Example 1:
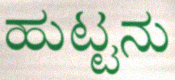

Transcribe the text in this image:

ಹುಟ್ಟನು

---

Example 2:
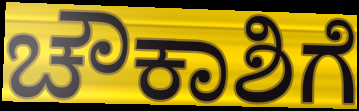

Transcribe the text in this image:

ಚೌಕಾಶಿಗೆ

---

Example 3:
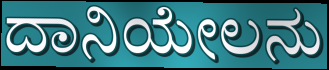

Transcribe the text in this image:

ದಾನಿಯೇಲನು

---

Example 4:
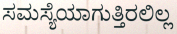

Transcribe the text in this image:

ಸಮಸ್ಯೆಯಾಗುತ್ತಿರಲಿಲ್ಲ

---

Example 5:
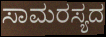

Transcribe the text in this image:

ಸಾಮರಸ್ಯದ